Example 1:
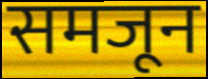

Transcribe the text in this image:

समजून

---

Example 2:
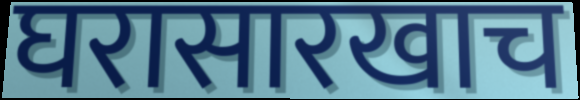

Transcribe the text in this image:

घरासारखाच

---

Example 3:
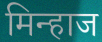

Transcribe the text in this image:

मिन्हाज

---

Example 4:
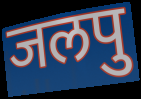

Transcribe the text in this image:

जलपु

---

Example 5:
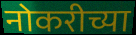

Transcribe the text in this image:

नोकरीच्या